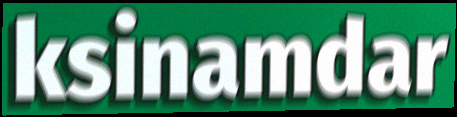
ksinamdar